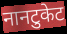
नानटुकेट